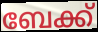
ബേക്ക്